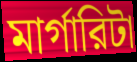
মার্গারিটা